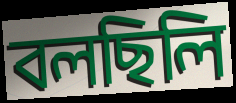
বলছিলি